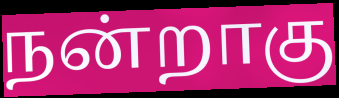
நன்றாகு